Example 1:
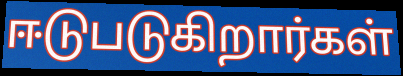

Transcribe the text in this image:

ஈடுபடுகிறார்கள்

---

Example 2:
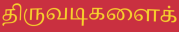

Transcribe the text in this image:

திருவடிகளைக்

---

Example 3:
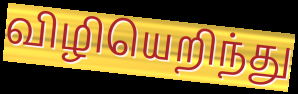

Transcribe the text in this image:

விழியெறிந்து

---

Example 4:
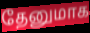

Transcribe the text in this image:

தேனுமாக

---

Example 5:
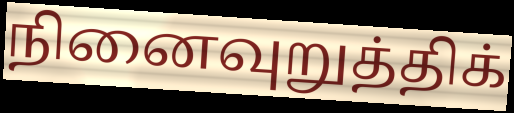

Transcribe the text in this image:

நினைவுறுத்திக்